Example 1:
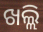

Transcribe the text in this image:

ଖଲ୍ଲି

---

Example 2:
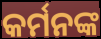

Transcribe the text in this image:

କର୍ମନଙ୍କ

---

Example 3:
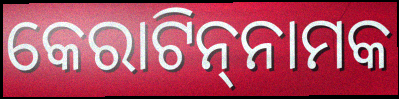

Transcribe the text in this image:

କେରାଟିନ୍‌ନାମକ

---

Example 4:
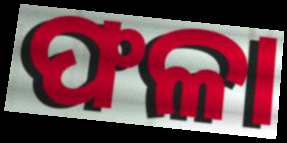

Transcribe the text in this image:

ଫଳା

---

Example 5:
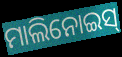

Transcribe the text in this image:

ମାଲିନୋଇସ୍